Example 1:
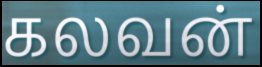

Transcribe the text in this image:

கலவன்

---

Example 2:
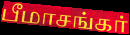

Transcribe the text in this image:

பீமாசங்கர்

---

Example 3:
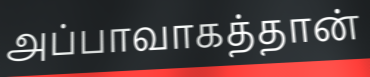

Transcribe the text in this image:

அப்பாவாகத்தான்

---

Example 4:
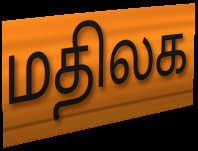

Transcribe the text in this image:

மதிலக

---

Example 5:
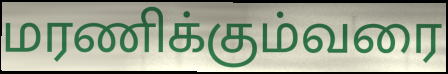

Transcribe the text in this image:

மரணிக்கும்வரை